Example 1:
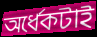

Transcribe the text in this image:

অর্ধেকটাই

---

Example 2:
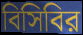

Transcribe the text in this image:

বিসিবির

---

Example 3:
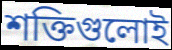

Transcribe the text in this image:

শক্তিগুলোই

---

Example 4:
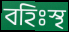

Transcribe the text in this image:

বহিঃস্থ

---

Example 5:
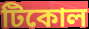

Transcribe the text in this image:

টিকোল